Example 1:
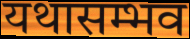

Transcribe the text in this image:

यथासम्भव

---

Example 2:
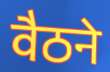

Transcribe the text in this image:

वैठने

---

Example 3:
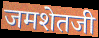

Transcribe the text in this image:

जमशेतजी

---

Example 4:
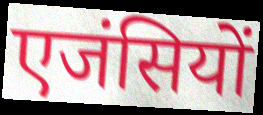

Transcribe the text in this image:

एजंसियों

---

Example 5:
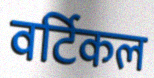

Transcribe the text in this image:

वर्टिकल